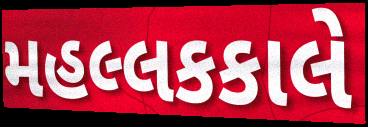
મહલ્લકકાલે